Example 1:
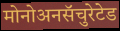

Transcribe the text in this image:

मोनोअनसॅचुरेटेड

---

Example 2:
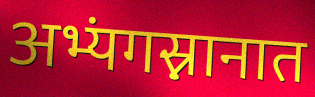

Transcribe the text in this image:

अभ्यंगस्नानात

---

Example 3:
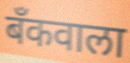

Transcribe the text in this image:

बँकवाला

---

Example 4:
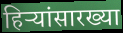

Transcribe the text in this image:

हिऱ्यांसारख्या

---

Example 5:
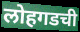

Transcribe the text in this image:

लोहगडची